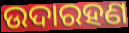
ଉଦାରହଣ